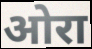
ओरा